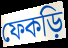
ফেকড়ি